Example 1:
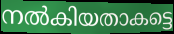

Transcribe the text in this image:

നൽകിയതാകട്ടെ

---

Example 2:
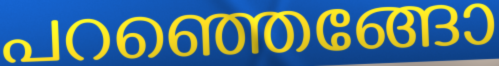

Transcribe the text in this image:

പറഞ്ഞെങ്ങോ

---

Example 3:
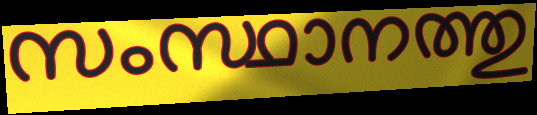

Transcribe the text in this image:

സംസ്ഥാനത്തു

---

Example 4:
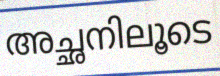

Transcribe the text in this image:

അച്ഛനിലൂടെ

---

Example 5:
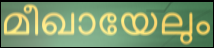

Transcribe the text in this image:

മീഖായേലും